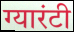
ग्‍यारंटी